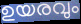
ഉയരവും